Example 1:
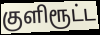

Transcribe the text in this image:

குளிரூட்ட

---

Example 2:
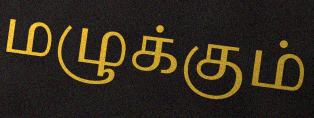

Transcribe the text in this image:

மழுக்கும்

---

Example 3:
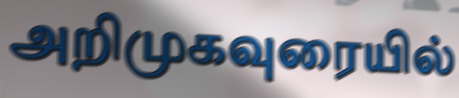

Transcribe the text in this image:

அறிமுகவுரையில்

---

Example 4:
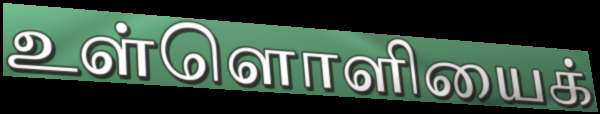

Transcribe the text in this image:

உள்ளொளியைக்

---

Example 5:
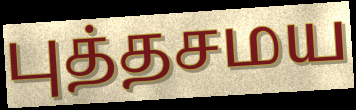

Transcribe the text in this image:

புத்தசமய